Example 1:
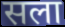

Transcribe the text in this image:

सला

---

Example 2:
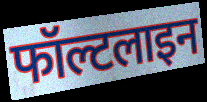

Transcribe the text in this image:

फॉल्टलाइन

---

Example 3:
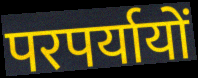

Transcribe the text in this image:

परपर्यायों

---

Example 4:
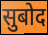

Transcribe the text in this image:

सुबोद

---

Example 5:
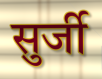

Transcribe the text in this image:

सुर्जी